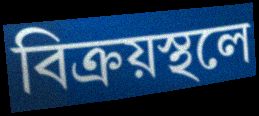
বিক্রয়স্থলে